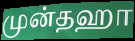
முன்தஹா